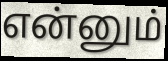
என்னும்